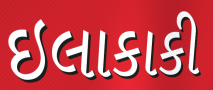
ઇલાકાકી